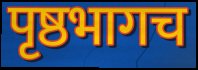
पृष्ठभागच